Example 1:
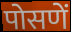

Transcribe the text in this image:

पोसणें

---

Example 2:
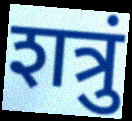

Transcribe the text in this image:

शत्रुं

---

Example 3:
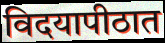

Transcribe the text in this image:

विदयापीठात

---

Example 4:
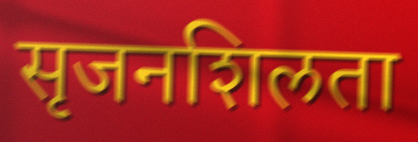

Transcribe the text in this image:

सृजनशिलता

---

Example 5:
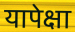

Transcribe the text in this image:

यापेक्षा